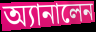
অ্যানালেন